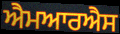
ਐਮਆਰਐਸ